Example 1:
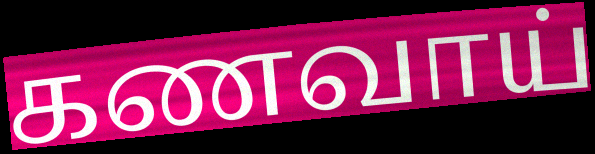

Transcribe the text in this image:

கணவாய்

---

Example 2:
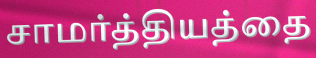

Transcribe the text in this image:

சாமர்த்தியத்தை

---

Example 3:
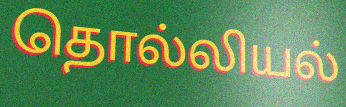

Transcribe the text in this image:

தொல்லியல்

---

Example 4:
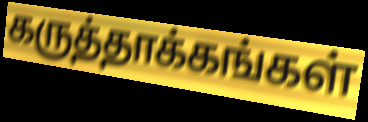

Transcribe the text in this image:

கருத்தாக்கங்கள்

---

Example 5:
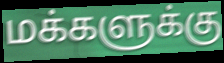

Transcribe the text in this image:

மக்களுக்கு